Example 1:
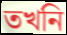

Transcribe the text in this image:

তখনি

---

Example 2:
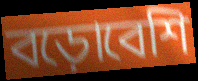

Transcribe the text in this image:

বড়োবেশি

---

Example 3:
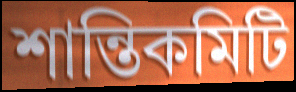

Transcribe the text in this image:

শান্তিকমিটি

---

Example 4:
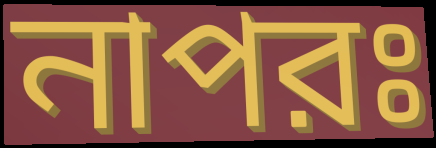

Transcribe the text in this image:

নাপরঃ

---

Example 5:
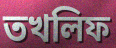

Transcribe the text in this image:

তখলিফ